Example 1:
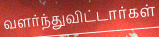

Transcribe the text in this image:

வளர்ந்துவிட்டார்கள்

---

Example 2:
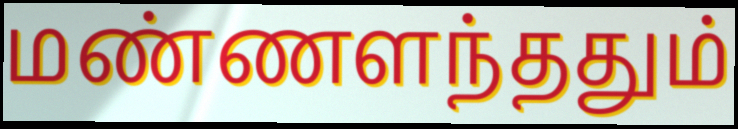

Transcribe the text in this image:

மண்ணளந்ததும்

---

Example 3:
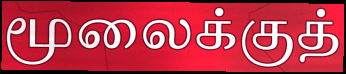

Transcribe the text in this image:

மூலைக்குத்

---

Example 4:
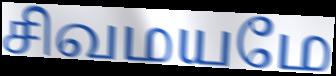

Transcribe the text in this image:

சிவமயமே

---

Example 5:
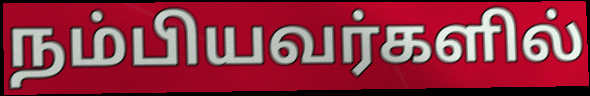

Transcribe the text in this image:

நம்பியவர்களில்